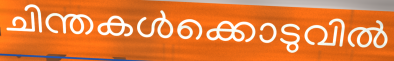
ചിന്തകൾക്കൊടുവിൽ